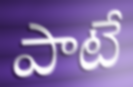
పాటే